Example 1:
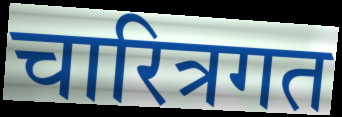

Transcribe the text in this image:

चारित्रगत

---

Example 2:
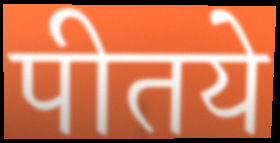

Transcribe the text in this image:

पीतये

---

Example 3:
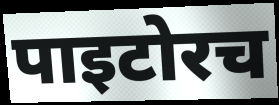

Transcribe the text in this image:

पाइटोरच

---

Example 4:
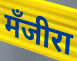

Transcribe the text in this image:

मँजीरा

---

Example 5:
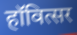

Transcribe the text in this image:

हॉवित्सर